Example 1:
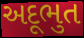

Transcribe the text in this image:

અદૂભુત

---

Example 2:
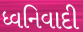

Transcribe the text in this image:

ધ્વનિવાદી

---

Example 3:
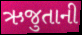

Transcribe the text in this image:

ઋજુતાની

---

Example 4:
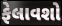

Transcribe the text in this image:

ફેલાવશો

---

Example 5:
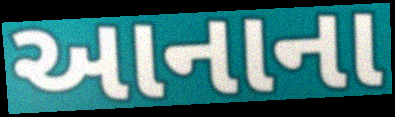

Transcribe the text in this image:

આનાના